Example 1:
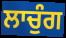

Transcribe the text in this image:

ਲਾਚੁੰਗ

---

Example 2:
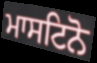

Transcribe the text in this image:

ਮਾਸਟਿਨੋ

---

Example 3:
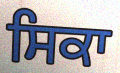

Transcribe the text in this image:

ਸਿਕਾ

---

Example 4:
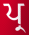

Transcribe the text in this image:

ਪ੍ਰ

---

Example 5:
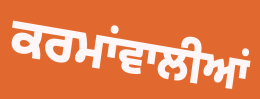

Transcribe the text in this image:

ਕਰਮਾਂਵਾਲੀਆਂ